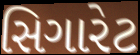
સિગારેટ